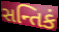
સન્તિકં